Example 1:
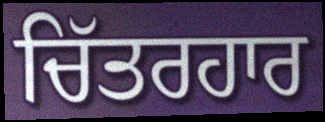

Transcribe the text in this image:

ਚਿੱਤਰਹਾਰ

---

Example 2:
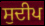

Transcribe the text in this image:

ਸੁਦੀਪ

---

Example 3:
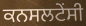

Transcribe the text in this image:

ਕਨਸਲਟੇਂਸੀ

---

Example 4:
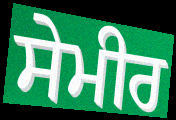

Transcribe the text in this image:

ਸੇਮੀਰ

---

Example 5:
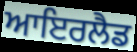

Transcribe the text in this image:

ਆਇਰਲੈਡ